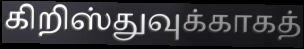
கிறிஸ்துவுக்காகத்